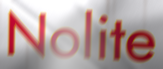
Nolite